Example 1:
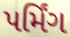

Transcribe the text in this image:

પર્મિંગ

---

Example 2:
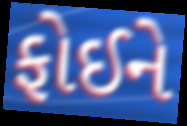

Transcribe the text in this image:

ફોઈને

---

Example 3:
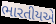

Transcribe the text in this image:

ભારતીયએ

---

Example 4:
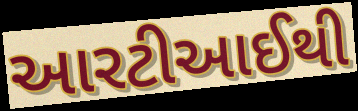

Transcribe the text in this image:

આરટીઆઈથી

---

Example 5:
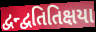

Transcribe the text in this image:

દ્વન્દ્વતિતિક્ષયા